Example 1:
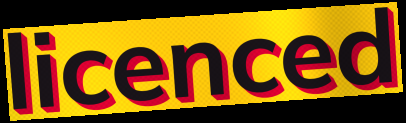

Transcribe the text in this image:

licenced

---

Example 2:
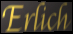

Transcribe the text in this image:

Erlich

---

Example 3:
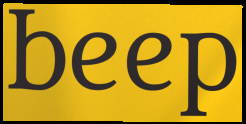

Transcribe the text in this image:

beep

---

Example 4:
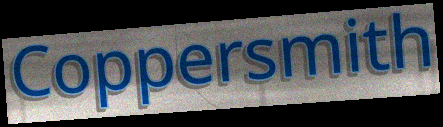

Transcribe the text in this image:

Coppersmith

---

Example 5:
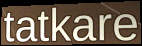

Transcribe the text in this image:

tatkare